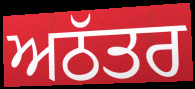
ਅਠੱਤਰ